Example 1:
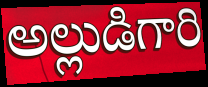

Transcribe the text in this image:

అల్లుడిగారి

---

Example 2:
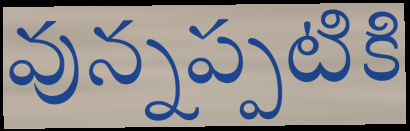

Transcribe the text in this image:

వున్నప్పటికి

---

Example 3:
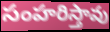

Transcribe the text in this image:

సంహరిస్తావు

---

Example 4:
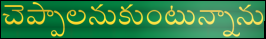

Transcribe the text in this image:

చెప్పాలనుకుంటున్నాను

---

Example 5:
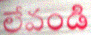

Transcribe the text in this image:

లేవండి